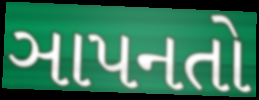
ઞાપનતો